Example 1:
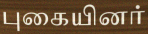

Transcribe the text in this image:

புகையினர்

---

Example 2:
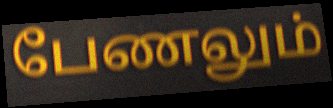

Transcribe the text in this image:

பேணலும்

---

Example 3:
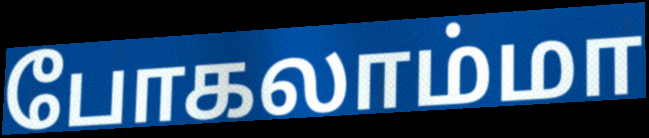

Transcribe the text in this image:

போகலாம்மா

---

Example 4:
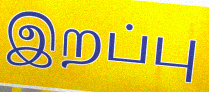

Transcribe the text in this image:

இறப்பு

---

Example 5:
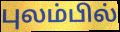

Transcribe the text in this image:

புலம்பில்